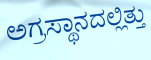
ಅಗ್ರಸ್ಥಾನದಲ್ಲಿತ್ತು